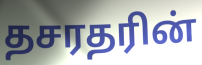
தசரதரின்